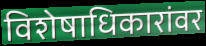
विशेषाधिकारांवर